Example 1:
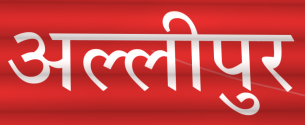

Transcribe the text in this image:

अल्लीपुर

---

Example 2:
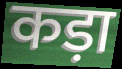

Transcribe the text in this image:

कड़ा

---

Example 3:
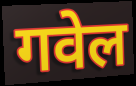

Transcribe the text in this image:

गवेल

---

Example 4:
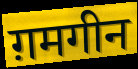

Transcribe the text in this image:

ग़मगीन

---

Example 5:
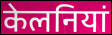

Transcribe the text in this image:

केलनियां